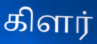
கிளர்